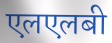
एलएलबी